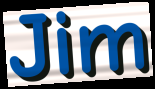
Jim